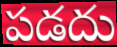
పడదు